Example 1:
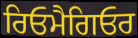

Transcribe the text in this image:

ਰਿਓਮੈਗਿਓਰ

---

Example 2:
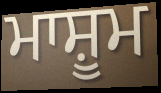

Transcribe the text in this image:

ਮਾਸ਼ੂਮ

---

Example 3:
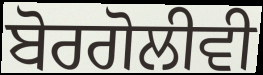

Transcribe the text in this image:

ਬੋਰਗੋਲੀਵੀ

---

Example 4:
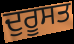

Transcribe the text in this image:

ਦੁਰੂਸਤ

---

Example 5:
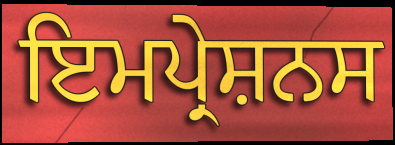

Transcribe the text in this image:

ਇਮਪ੍ਰੇਸ਼ਨਸ